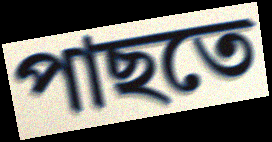
পাছতে